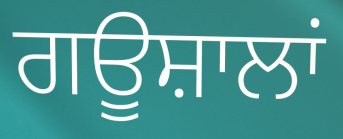
ਗਊਸ਼ਾਲਾਂ